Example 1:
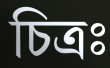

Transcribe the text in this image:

চিত্রঃ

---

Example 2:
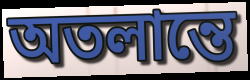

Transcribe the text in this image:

অতলান্তে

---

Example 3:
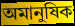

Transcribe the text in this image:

অমানুষিক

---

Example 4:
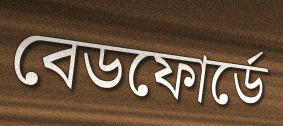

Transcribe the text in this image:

বেডফোর্ডে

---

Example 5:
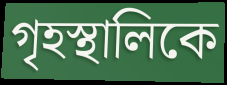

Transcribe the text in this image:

গৃহস্থালিকে